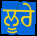
ਲੂਰੇ